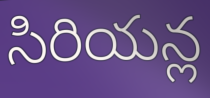
సిరియన్ల